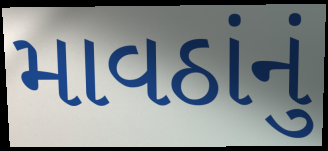
માવઠાંનું